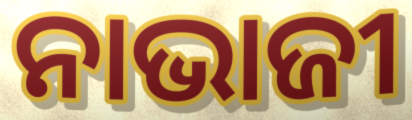
ନାଭାଜୀ